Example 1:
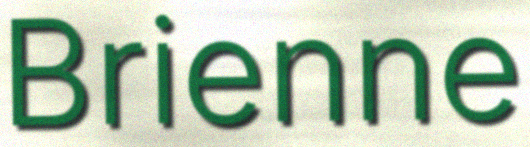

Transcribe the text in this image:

Brienne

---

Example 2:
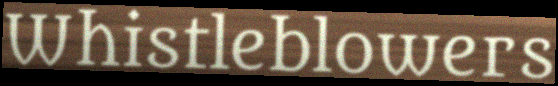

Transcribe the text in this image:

Whistleblowers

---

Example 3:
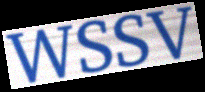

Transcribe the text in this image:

WSSV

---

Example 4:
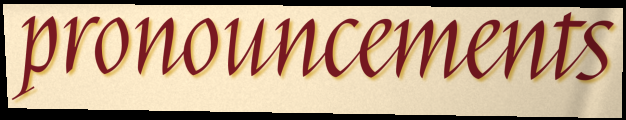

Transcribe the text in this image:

pronouncements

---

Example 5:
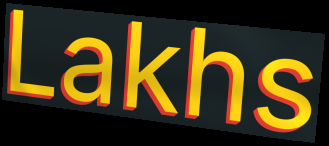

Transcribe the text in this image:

Lakhs